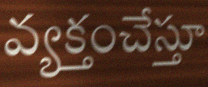
వ్యక్తంచేస్తూ